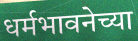
धर्मभावनेच्या